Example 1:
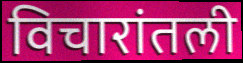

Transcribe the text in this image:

विचारांतली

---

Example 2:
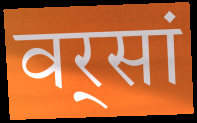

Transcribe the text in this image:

वर्सां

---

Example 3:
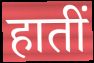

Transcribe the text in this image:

हातीं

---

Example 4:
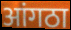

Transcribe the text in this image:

आंगठा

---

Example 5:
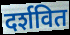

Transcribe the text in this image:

दर्शवित